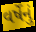
વર્ષેનું